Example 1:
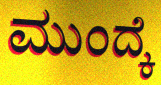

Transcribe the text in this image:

ಮುಂದ್ಕೆ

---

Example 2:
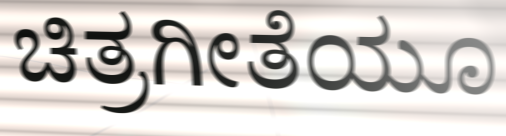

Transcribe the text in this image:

ಚಿತ್ರಗೀತೆಯೂ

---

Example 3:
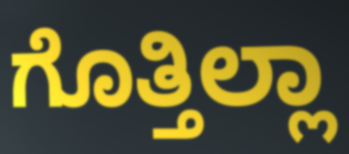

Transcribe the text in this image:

ಗೊತ್ತಿಲ್ಲಾ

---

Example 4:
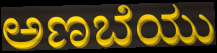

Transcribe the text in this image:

ಅಣಬೆಯು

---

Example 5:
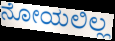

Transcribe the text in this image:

ನೋಯಲಿಲ್ಲ